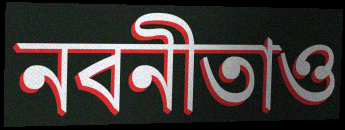
নবনীতাও